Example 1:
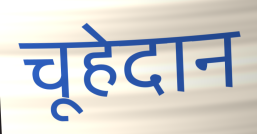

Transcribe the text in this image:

चूहेदान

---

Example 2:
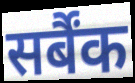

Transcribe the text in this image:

सर्बैंक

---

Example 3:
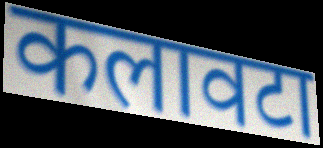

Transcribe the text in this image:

कलावटा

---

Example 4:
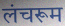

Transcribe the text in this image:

लंचरूम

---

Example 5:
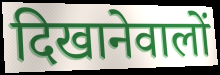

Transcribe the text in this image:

दिखानेवालों